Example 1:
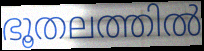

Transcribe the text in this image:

ഭൂതലത്തിൽ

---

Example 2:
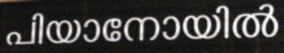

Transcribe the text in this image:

പിയാനോയിൽ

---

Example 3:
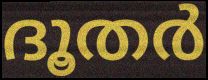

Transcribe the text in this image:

ദൂതർ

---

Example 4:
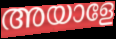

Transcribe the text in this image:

അയാളേ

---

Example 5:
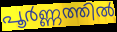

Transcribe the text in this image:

പൂർണ്ണത്തിൽ